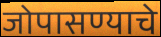
जोपासण्याचे